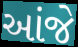
આંજે